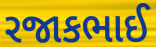
રજાકભાઈ